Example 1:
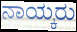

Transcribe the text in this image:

ನಾಯ್ಕರು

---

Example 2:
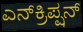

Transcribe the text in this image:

ಎನ್‌ಕ್ರಿಪ್ಷನ್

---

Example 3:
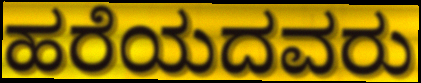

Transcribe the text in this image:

ಹರೆಯದವರು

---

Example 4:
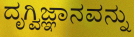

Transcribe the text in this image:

ದೃಗ್ವಿಜ್ಞಾನವನ್ನು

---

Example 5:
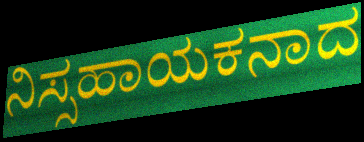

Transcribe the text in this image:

ನಿಸ್ಸಹಾಯಕನಾದ